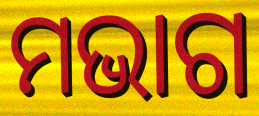
ମଭାଗ